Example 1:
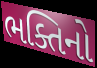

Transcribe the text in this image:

ભક્તિનો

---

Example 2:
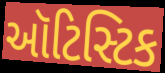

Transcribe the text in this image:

ઑટિસ્ટિક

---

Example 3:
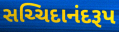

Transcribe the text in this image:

સચ્ચિદાનંદરૂપ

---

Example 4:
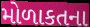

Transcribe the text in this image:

મોળાકતના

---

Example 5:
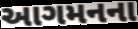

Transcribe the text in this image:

આગમનના